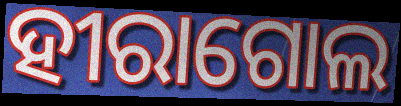
ହୀରାଗୋଲ